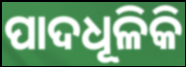
ପାଦଧୂଳିକି